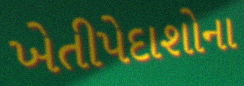
ખેતીપેદાશોના